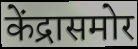
केंद्रासमोर